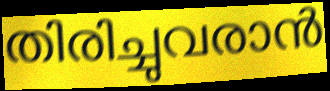
തിരിച്ചുവരാൻ